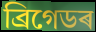
ব্ৰিগেডৰ